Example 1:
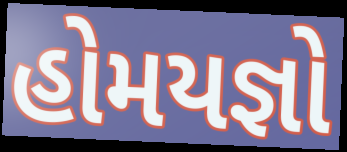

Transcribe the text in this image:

હોમયજ્ઞો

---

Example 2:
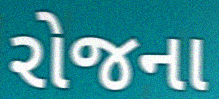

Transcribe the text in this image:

રોજના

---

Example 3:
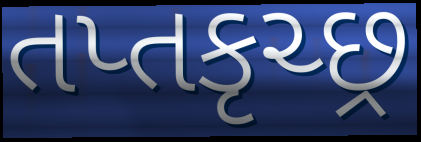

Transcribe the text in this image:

તપ્તકૃચ્છ્ર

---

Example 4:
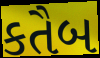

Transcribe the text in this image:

કતૈબ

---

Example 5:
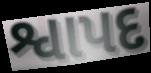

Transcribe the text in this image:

શ્વાપદ